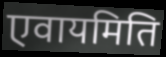
एवायमिति